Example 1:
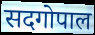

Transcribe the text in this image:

सदगोपाल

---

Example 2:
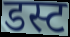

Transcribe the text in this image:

डस्ट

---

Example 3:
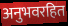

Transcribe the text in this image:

अनुभवरहित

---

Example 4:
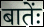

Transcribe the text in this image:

बातेंः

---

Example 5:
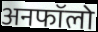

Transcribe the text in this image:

अनफॉलो